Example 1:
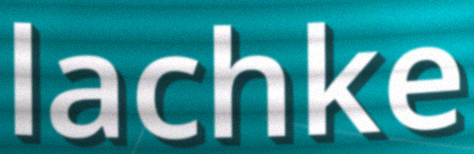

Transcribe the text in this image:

lachke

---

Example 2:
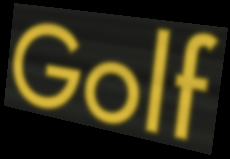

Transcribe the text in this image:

Golf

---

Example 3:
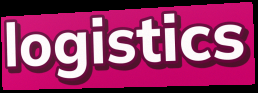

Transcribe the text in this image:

logistics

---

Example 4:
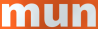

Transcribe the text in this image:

mun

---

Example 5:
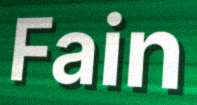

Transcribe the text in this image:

Fain